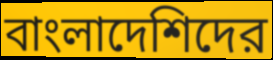
বাংলাদেশিদের